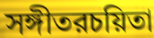
সঙ্গীতরচয়িতা